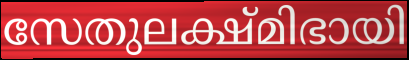
സേതുലക്ഷ്മിഭായി